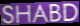
SHABD